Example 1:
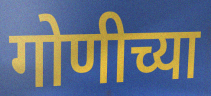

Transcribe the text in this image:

गोणीच्या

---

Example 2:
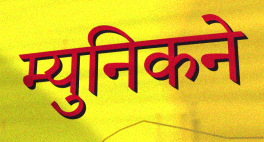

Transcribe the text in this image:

म्युनिकने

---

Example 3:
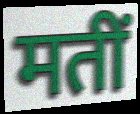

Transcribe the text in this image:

मतीं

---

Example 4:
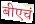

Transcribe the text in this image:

बीएचं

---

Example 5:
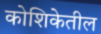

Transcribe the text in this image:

कोशिकेतील